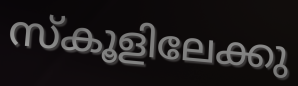
സ്കൂളിലേക്കു